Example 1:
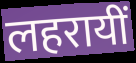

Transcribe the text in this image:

लहरायीं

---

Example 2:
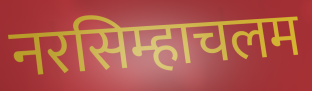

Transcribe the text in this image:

नरसिम्हाचलम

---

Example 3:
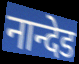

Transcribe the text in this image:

नान्देड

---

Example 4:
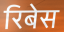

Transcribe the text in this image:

रिबेस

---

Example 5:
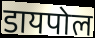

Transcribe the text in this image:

डायपोल